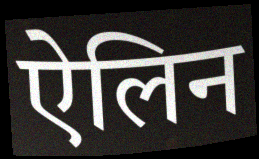
ऐलिन